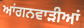
ਆਂਗਨਵਾੜੀਆਂ